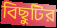
বিছুটির